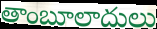
తాంబూలాదులు